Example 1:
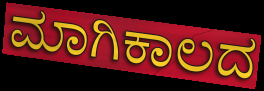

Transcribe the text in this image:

ಮಾಗಿಕಾಲದ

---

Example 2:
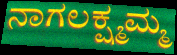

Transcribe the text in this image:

ನಾಗಲಕ್ಷ್ಮಮ್ಮ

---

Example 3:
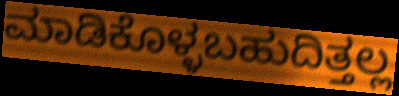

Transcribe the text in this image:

ಮಾಡಿಕೊಳ್ಳಬಹುದಿತ್ತಲ್ಲ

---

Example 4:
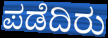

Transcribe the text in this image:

ಪಡೆದಿರು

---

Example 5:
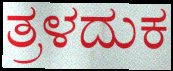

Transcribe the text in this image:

ತ್ರಳದುಕ